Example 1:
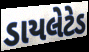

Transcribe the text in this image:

ડાયલેટેડ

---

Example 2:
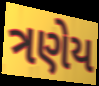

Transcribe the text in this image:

ત્રણેય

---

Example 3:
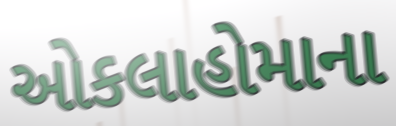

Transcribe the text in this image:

ઓકલાહોમાના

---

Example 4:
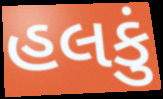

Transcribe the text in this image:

હલકું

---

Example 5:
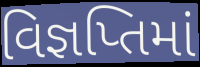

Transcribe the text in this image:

વિજ્ઞપ્તિમાં